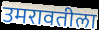
उमरावतीला